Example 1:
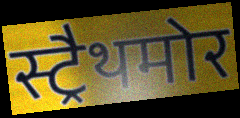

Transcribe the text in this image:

स्ट्रैथमोर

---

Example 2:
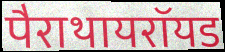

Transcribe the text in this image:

पैराथायरॉयड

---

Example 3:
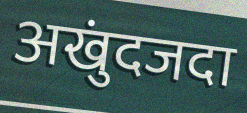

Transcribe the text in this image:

अखुंदजदा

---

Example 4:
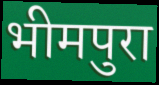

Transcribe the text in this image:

भीमपुरा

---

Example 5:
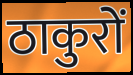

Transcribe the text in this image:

ठाकुरों